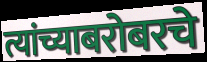
त्यांच्याबरोबरचे